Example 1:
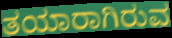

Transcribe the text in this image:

ತಯಾರಾಗಿರುವ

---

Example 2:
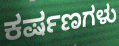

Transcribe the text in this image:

ಕರ್ಷಣಗಳು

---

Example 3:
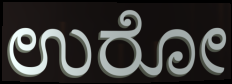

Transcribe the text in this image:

ಉರೋ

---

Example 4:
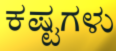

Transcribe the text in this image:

ಕಷ್ಟಗಳು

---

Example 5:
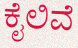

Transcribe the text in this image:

ಕೈಲಿವೆ